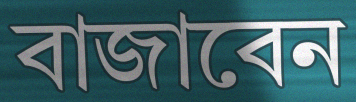
বাজাবেন